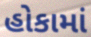
હોકામાં